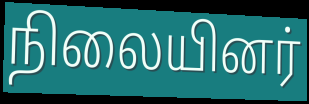
நிலையினர்